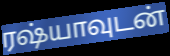
ரஷ்யாவுடன்